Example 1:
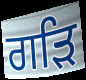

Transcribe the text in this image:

ਗੜਿ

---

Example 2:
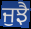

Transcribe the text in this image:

ਜੁਝੈ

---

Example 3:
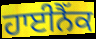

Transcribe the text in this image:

ਹਾਈਨੈੱਕ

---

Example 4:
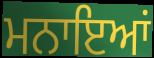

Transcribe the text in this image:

ਮਨਾਇਆਂ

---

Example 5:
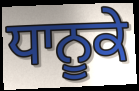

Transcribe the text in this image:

ਧਾਨੂਕੇ